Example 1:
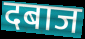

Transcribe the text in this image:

दबाज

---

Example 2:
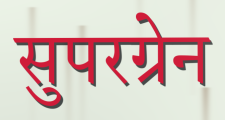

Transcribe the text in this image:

सुपरग्रेन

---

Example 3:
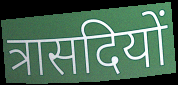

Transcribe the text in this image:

त्रासदियों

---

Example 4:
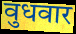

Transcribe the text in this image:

वुधवार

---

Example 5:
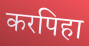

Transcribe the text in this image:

करपिहा